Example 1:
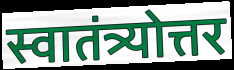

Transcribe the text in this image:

स्वातंत्र्योत्तर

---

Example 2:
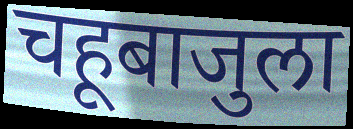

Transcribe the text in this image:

चहूबाजुला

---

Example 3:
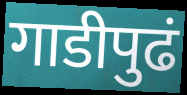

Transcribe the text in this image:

गाडीपुढं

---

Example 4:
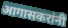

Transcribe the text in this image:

आगासकरांनी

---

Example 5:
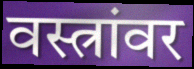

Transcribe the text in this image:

वस्त्रांवर